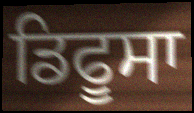
ਡਿਫੂਸਾ